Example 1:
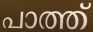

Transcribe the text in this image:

പാത്ത്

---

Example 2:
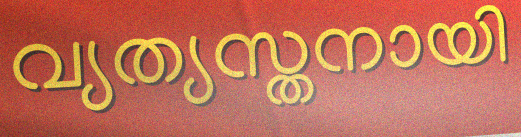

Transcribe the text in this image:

വ്യത്യസ്തനായി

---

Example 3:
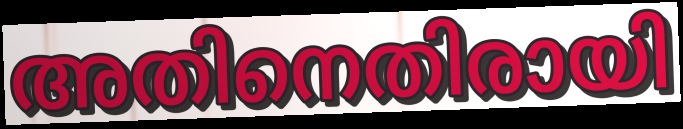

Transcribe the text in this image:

അതിനെതിരായി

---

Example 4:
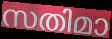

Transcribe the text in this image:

സതിമാ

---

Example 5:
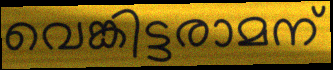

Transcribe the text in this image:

വെങ്കിട്ടരാമന്